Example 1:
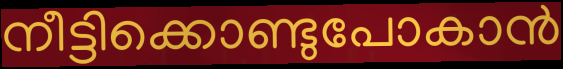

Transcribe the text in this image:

നീട്ടിക്കൊണ്ടുപോകാൻ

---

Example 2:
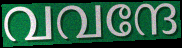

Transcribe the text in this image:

വവന്ദേ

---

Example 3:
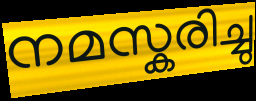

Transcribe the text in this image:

നമസ്കരിച്ചു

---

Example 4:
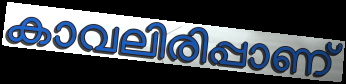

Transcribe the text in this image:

കാവലിരിപ്പാണ്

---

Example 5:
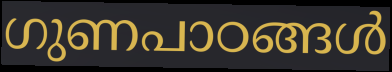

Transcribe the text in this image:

ഗുണപാഠങ്ങൾ